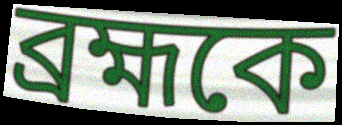
ব্রহ্মকে